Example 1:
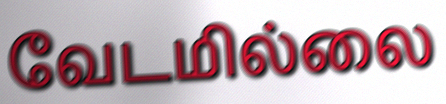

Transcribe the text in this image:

வேடமில்லை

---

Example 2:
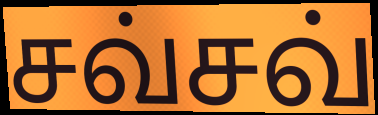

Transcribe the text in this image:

சவ்சவ்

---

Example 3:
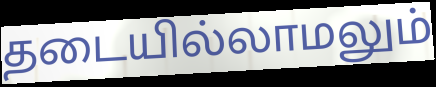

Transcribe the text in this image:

தடையில்லாமலும்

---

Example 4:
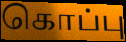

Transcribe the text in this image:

கொப்பு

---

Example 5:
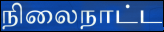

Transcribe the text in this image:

நிலைநாட்ட